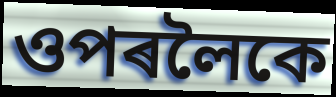
ওপৰলৈকে